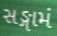
સઙ્ગામં